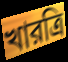
খারত্রি